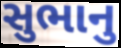
સુભાનુ